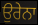
ਉਰੇਨਾ